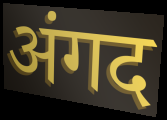
अंगद